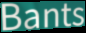
Bants